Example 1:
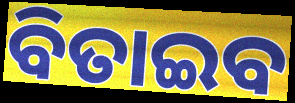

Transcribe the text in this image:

ବିତାଇବ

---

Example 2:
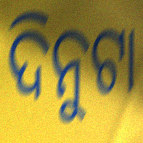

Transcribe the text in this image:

ଦିନୁଟା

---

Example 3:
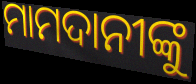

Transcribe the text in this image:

ମାମଦାନୀଙ୍କୁ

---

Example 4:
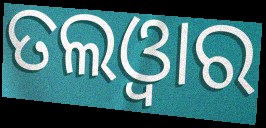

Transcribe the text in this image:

ତଲଓ୍ୱାର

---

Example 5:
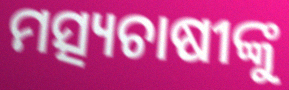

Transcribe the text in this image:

ମତ୍ସ୍ୟଚାଷୀଙ୍କୁ